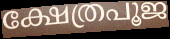
ക്ഷേത്രപൂജ